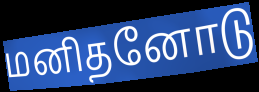
மனிதனோடு